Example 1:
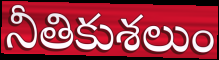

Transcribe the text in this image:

నీతికుశలుం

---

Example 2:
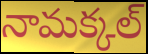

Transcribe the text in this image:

నామక్కల్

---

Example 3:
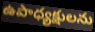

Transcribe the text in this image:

ఉపాధ్యక్షులను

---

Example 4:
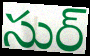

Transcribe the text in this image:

సుర్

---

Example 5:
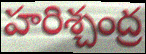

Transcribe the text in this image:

హరిశ్చంద్ర